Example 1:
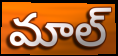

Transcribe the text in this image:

మాల్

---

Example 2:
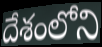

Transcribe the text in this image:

దేశంలోని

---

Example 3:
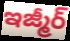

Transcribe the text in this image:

ఇజ్మీర్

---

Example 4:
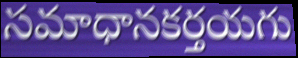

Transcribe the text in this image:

సమాధానకర్తయగు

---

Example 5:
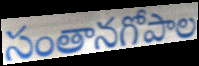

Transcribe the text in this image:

సంతానగోపాల